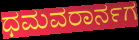
ಧಮವರಾರ್ನಗ